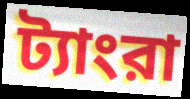
ট্যাংরা